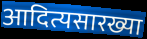
आदित्यसारख्या